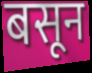
बसून